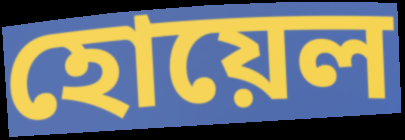
হোয়েল